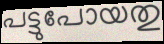
പട്ടുപോയതു